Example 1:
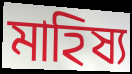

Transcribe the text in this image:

মাহিষ্য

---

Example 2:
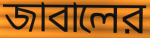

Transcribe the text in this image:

জাবালের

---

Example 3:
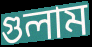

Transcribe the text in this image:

গুলাম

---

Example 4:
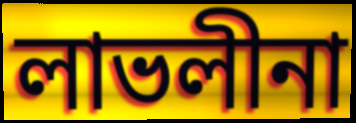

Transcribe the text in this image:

লাভলীনা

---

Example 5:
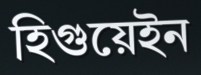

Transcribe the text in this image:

হিগুয়েইন